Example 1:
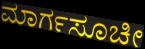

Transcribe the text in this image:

ಮಾರ್ಗಸೂಚೀ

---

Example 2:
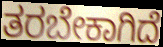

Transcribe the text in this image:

ತರಬೇಕಾಗಿದೆ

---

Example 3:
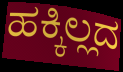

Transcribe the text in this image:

ಹಕ್ಕಿಲ್ಲದ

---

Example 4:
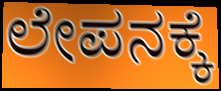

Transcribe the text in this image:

ಲೇಪನಕ್ಕೆ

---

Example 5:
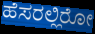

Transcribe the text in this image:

ಹೆಸರಲ್ಲಿರೋ